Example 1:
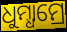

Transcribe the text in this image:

ଧୁମ୍ଧାମ୍ରେ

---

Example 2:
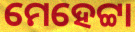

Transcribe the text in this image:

ମେହେଟ୍ଟା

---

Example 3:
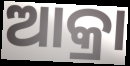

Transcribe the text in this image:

ଆକ୍ରା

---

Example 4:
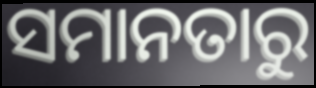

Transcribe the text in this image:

ସମାନତାରୁ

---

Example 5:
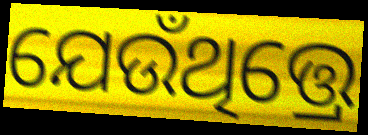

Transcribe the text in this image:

ଯେଉଁଥିତ୍ତ୍ରେ